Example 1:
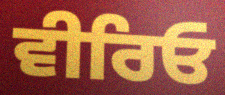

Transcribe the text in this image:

ਵੀਰਿਓ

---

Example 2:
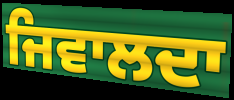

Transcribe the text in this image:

ਜਿਵਾਲਦਾ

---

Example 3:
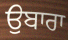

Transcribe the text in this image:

ਉਬਾਰਾ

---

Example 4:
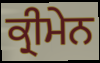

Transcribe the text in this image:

ਕ੍ਰੀਮੇਨ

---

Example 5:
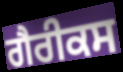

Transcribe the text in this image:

ਗੈਰੀਕਸ